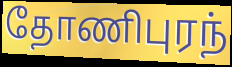
தோணிபுரந்